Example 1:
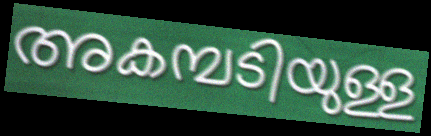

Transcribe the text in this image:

അകമ്പടിയുള്ള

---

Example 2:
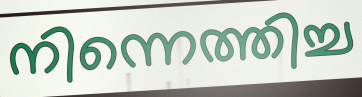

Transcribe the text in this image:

നിന്നെത്തിച്ച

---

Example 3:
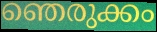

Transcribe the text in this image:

ഞെരുക്കം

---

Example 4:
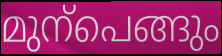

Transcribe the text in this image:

മുന്പെങ്ങും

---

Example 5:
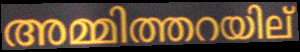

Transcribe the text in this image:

അമ്മിത്തറയില്